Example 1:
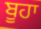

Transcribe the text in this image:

ਬੂਹਾ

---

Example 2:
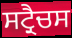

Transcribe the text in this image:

ਸਟ੍ਰੈਚਸ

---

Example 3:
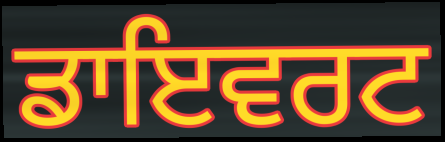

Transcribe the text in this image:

ਡਾਇਵਰਟ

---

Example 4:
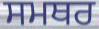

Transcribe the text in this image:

ਸਮਥਰ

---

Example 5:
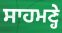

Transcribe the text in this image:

ਸਾਹਮਣ੍ਹੇ